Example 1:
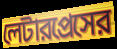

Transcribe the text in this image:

লেটারপ্রেসের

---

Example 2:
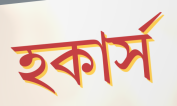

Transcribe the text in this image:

হকার্স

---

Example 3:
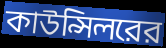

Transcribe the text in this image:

কাউন্সিলরের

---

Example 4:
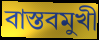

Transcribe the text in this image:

বাস্তবমুখী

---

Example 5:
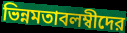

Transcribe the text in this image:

ভিন্নমতাবলম্বীদের